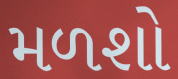
મળશો